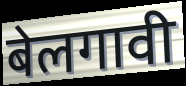
बेलगावी